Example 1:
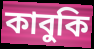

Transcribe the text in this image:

কাবুকি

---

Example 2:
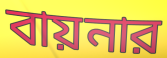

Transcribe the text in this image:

বায়নার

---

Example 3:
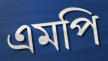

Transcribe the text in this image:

এমপি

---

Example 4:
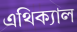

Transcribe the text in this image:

এথিক্যাল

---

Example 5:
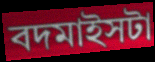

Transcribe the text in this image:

বদমাইসটা